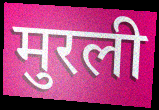
मुरली